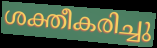
ശക്തീകരിച്ചു